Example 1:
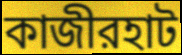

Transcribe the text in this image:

কাজীরহাট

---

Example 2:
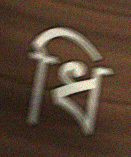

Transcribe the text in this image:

ধি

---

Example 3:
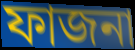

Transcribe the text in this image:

ফাজনা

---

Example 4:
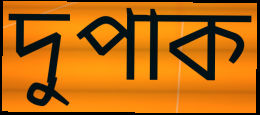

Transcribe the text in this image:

দুপাক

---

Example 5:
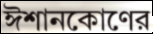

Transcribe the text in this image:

ঈশানকোণের